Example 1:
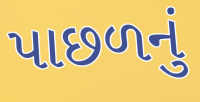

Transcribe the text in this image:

પાછળનું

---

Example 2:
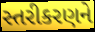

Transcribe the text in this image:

સ્તરીકરણને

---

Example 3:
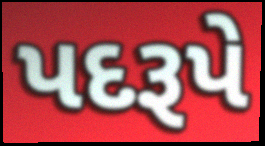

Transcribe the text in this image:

પદરૂપે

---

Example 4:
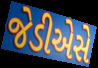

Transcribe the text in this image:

જેડીએસે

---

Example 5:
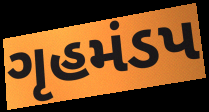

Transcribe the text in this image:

ગૃહમંડપ